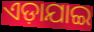
ଏଡ଼ାଯାଇ